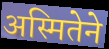
अस्मितेने